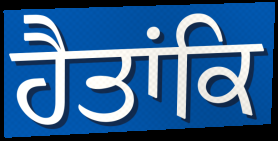
ਹੈਤਾਂਕਿ